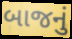
બાજનું